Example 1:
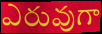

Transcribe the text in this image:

ఎరువుగా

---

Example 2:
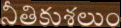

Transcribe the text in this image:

నీతికుశలుం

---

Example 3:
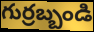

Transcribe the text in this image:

గుర్రబ్బండి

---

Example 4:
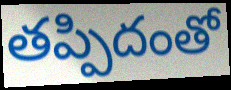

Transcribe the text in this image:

తప్పిదంతో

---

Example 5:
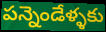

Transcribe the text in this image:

పన్నెండేళ్ళకు